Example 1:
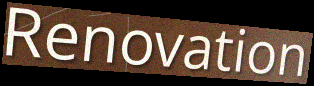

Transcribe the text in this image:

Renovation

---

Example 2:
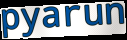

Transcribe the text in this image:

pyarun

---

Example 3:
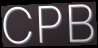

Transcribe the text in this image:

CPB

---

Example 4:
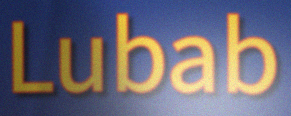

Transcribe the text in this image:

Lubab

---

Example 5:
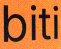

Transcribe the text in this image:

biti